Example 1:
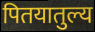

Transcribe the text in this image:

पितयातुल्य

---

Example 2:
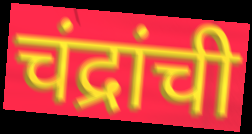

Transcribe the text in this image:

चंद्रांची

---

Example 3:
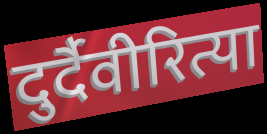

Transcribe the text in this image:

दुर्दैवीरित्या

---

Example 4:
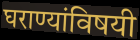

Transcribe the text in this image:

घराण्यांविषयी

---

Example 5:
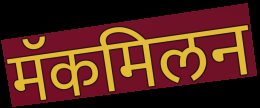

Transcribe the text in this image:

मॅकमिलन